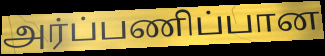
அர்ப்பணிப்பான